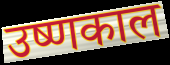
उष्णकाल